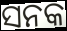
ସନକ